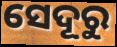
ସେଦୂରୁ